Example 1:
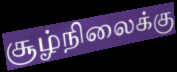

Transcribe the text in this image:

சூழ்நிலைக்கு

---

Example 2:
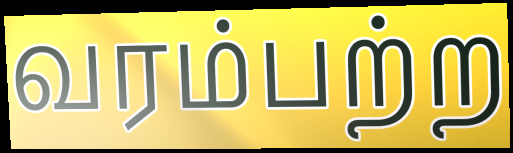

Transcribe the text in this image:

வரம்பற்ற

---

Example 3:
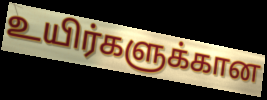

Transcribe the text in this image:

உயிர்களுக்கான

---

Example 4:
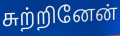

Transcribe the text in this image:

சுற்றினேன்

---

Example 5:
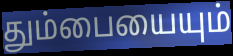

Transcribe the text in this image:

தும்பையையும்